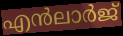
എൻലാർജ്